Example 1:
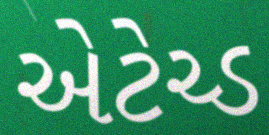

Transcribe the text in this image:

એટેચ્ડ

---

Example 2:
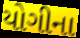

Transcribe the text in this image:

યોગીના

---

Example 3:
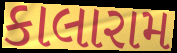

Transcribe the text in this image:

કાલારામ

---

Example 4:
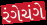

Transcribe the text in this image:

રંગેચંગે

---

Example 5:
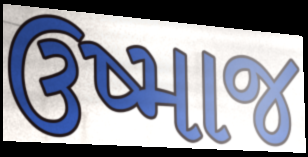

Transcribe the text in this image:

ઉષ્માજ